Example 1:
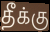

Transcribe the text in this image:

தீக்கு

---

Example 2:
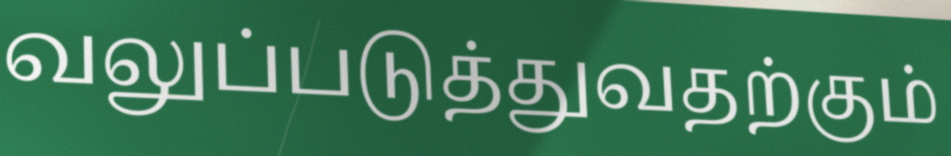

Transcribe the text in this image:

வலுப்படுத்துவதற்கும்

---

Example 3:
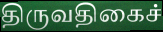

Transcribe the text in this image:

திருவதிகைச்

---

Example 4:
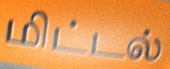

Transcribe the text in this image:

மிட்டல்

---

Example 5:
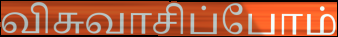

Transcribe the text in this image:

விசுவாசிப்போம்